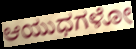
ಆಯುಧಗಳೋ